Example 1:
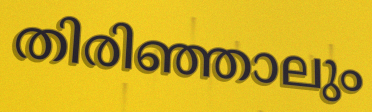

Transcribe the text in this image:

തിരിഞ്ഞാലും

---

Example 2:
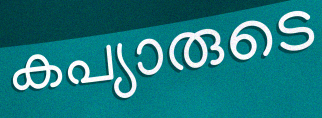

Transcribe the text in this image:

കപ്യാരുടെ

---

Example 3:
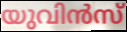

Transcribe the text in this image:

യുവിൻസ്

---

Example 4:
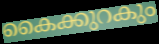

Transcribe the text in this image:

കൈക്കുറകും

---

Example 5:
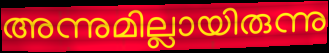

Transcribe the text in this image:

അന്നുമില്ലായിരുന്നു